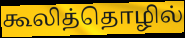
கூலித்தொழில்